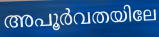
അപൂർവതയിലേ